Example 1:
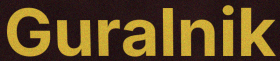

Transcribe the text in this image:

Guralnik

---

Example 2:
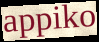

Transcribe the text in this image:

appiko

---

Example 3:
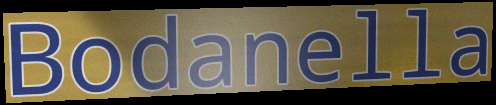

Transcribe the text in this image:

Bodanella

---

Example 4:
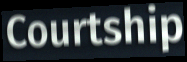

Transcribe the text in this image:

Courtship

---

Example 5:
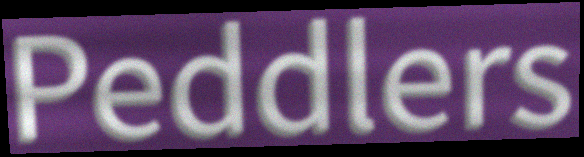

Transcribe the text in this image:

Peddlers